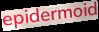
epidermoid